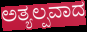
ಅತ್ಯಲ್ಪವಾದ